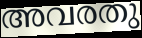
അവരതു